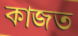
কাজত